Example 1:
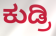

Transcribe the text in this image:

ಕುಡ್ರಿ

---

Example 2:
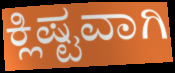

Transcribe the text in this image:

ಕ್ಲಿಷ್ಟವಾಗಿ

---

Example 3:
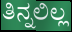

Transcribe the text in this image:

ತಿನ್ನಲಿಲ್ಲ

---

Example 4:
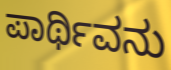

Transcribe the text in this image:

ಪಾರ್ಥಿವನು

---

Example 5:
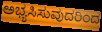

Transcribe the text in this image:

ಅಭ್ಯಸಿಸುವುದರಿಂದ